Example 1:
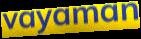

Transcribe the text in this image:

vayaman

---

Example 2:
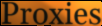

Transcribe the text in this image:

Proxies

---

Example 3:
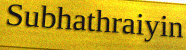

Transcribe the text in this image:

Subhathraiyin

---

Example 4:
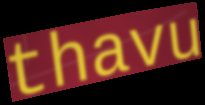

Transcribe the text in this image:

thavu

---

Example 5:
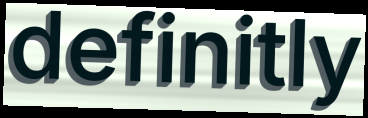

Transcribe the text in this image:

definitly